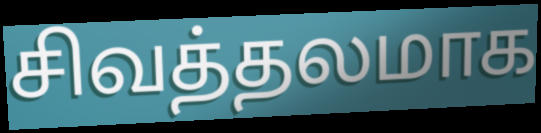
சிவத்தலமாக